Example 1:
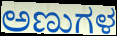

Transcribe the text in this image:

ಅಣುಗಳ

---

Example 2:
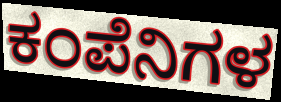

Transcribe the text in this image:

ಕಂಪೆನಿಗಳ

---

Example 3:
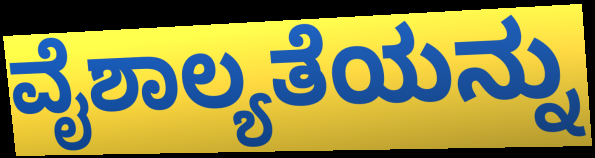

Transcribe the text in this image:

ವೈಶಾಲ್ಯತೆಯನ್ನು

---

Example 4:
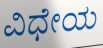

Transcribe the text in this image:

ವಿಧೇಯ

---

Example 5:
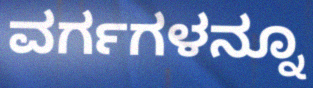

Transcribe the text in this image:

ವರ್ಗಗಳನ್ನೂ